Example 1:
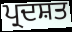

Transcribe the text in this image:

ਪ੍ਰਦਸ਼ਤ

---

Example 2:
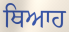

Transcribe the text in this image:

ਥਿਆਹ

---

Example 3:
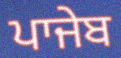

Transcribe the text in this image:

ਪਾਜੇਬ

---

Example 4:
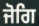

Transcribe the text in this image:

ਜੋਗਿ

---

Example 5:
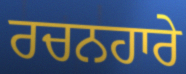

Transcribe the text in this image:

ਰਚਨਹਾਰੇ